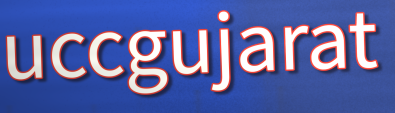
uccgujarat